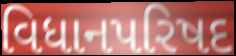
વિધાનપરિષદ